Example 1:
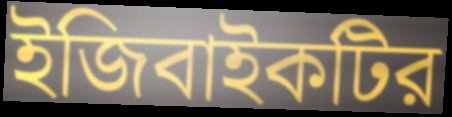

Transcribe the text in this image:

ইজিবাইকটির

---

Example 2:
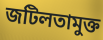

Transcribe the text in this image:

জটিলতামুক্ত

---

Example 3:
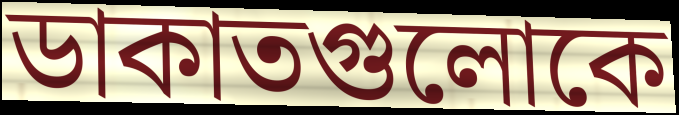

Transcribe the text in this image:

ডাকাতগুলোকে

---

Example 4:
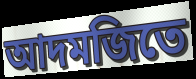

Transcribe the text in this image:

আদমজিতে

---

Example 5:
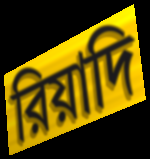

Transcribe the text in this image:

রিয়াদি